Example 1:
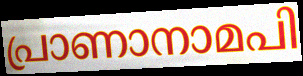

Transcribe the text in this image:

പ്രാണാനാമപി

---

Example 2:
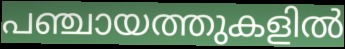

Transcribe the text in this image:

പഞ്ചായത്തുകളിൽ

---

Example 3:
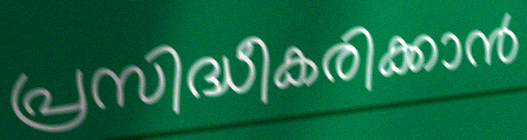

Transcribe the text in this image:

പ്രസിദ്ധീകരിക്കാൻ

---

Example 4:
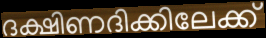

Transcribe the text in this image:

ദക്ഷിണദിക്കിലേക്ക്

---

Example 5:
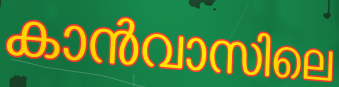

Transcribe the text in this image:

കാൻവാസിലെ